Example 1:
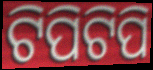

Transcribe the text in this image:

ଟିପିଟିପି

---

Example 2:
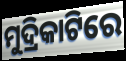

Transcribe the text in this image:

ମୁଦ୍ରିକାଟିରେ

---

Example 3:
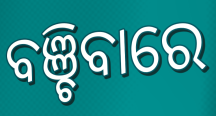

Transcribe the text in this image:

ବଞ୍ଚିବାରେ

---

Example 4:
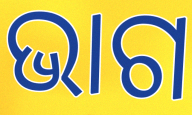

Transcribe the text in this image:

ଭାଗ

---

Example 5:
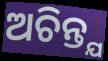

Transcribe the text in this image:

ଅଚିନ୍ତ୍ଯ